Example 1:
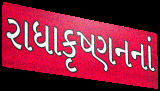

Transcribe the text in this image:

રાધાકૃષ્ણનનાં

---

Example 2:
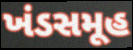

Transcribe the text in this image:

ખંડસમૂહ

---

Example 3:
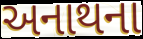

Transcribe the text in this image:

અનાથના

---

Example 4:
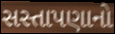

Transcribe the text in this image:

સસ્તાપણાનો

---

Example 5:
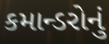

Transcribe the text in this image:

કમાન્ડરોનું